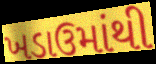
ખડાઉમાંથી